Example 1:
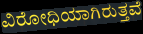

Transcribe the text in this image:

ವಿರೋಧಿಯಾಗಿರುತ್ತವೆ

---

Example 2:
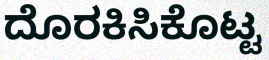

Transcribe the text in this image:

ದೊರಕಿಸಿಕೊಟ್ಟ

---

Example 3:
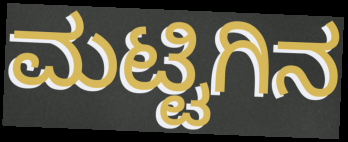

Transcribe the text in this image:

ಮಟ್ಟಿಗಿನ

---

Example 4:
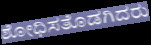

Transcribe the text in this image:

ಶೋಧಿಸತೊಡಗಿದರು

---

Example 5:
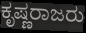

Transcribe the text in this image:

ಕೃಷ್ಣರಾಜರು